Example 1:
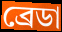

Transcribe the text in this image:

ব্রেডা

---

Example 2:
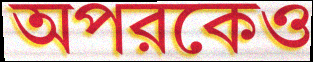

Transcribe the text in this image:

অপরকেও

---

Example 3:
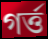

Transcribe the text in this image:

গর্ত্ত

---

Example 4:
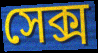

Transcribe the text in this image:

সেক্স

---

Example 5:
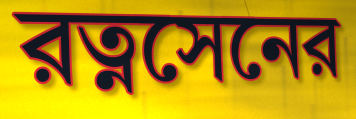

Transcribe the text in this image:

রত্নসেনের